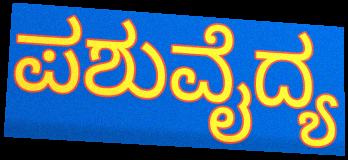
ಪಶುವೈದ್ಯ